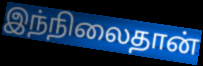
இந்நிலைதான்